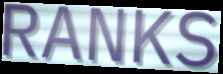
RANKS